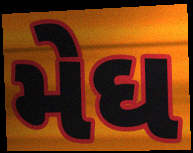
મેઘ